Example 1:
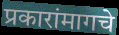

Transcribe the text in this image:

प्रकारांमागचे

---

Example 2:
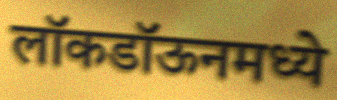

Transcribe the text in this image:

लॉकडॉऊनमध्ये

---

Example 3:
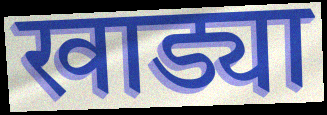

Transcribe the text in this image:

खाड्या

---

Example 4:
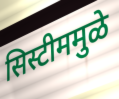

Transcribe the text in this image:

सिस्टीममुळे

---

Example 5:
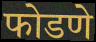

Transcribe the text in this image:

फोडणे